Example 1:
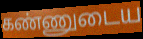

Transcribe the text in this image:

கண்ணுடைய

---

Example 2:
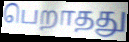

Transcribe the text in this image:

பெறாதது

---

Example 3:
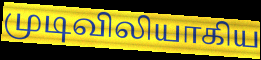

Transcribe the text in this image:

முடிவிலியாகிய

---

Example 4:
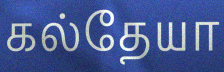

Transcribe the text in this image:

கல்தேயா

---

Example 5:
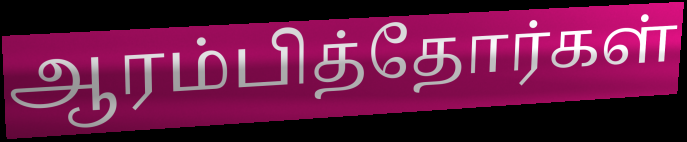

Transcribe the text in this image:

ஆரம்பித்தோர்கள்